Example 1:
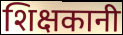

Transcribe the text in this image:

शिक्षकानी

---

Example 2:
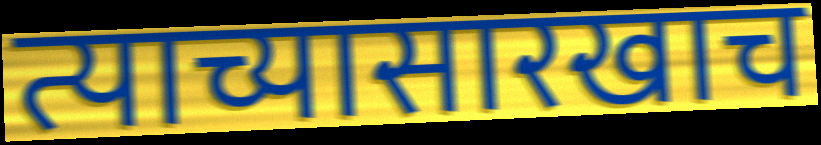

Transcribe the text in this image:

त्याच्यासारखाच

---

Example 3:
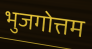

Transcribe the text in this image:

भुजगोत्तम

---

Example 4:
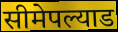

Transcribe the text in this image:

सीमेपल्याड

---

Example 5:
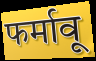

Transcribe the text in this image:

फर्मावू